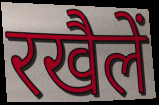
रखैलें